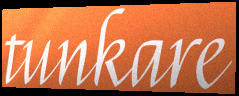
tunkare